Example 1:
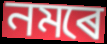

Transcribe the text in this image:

নমৰে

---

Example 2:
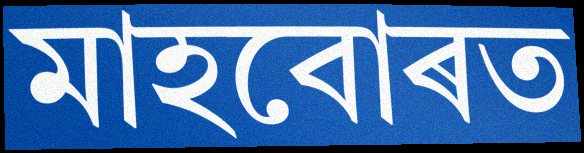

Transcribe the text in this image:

মাহবোৰত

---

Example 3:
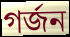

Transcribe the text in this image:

গৰ্জন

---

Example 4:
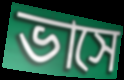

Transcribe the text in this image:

ভাসে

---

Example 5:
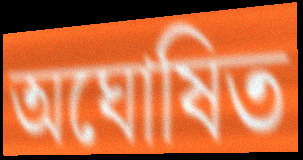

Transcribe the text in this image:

অঘোষিত